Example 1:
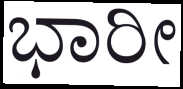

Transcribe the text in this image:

ಭಾರೀ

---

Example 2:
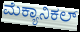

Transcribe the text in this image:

ಮೆಕ್ಯಾನಿಕಲ್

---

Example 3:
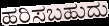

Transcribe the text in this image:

ಹರಿಸಬಹುದು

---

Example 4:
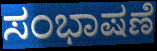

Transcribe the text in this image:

ಸಂಭಾಷಣೆ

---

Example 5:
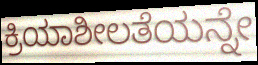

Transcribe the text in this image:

ಕ್ರಿಯಾಶೀಲತೆಯನ್ನೇ